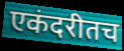
एकंदरीतच